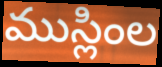
ముస్లింల